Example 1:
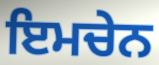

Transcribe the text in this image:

ਇਮਚੇਨ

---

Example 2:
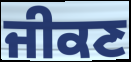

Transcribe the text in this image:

ਜੀਕਣ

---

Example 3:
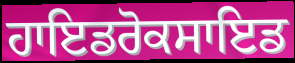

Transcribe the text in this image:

ਹਾਇਡਰੋਕਸਾਇਡ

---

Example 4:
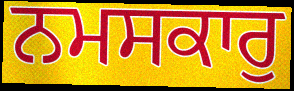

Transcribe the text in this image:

ਨਮਸਕਾਰੁ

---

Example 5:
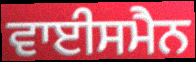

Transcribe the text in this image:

ਵਾਈਸਮੈਨ